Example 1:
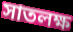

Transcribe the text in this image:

সাতলক্ষ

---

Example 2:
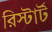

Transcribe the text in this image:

রিস্টার্ট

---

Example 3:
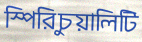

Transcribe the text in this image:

স্পিরিচুয়ালিটি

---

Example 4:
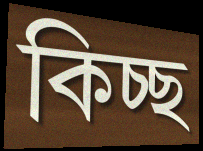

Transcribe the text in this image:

কিচ্ছ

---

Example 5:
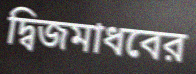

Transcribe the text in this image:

দ্বিজমাধবের